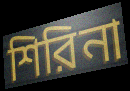
শিরিনা